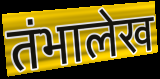
तंभालेख